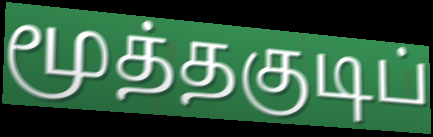
மூத்தகுடிப்